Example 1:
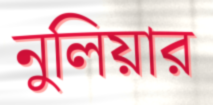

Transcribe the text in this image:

নুলিয়ার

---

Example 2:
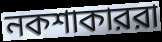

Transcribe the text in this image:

নকশাকাররা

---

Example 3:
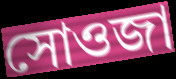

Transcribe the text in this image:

সোওজা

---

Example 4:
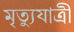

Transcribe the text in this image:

মৃত্যুযাত্রী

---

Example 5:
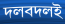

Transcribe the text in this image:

দলবদলই